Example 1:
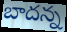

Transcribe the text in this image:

బాదన్న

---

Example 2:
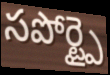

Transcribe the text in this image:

సపోర్ట్పై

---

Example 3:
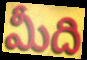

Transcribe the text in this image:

మీది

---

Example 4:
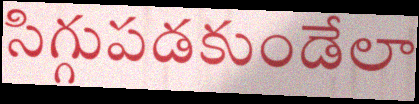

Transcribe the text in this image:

సిగ్గుపడకుండేలా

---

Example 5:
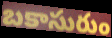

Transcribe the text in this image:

బకాసురుం